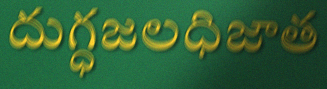
దుగ్ధజలధిజాత